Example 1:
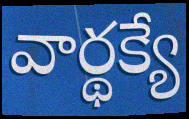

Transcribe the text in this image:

వార్థక్యే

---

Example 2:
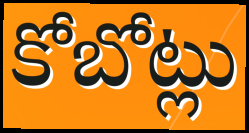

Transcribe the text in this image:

కోబోట్లు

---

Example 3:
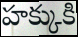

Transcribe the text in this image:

హక్కుకి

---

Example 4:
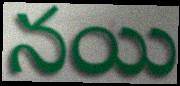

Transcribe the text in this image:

నయి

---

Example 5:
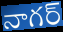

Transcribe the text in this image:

నాగర్